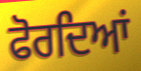
ਫੋਰਦਿਆਂ